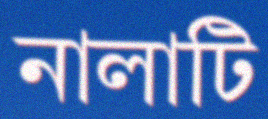
নালাটি